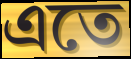
এতে